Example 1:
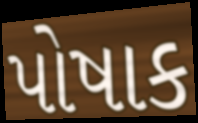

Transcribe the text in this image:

પોષાક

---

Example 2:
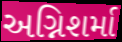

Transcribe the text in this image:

અગ્નિશર્મા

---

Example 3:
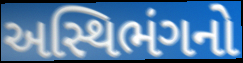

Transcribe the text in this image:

અસ્થિભંગનો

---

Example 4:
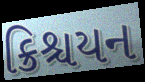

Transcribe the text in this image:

ક્રિશ્ચયન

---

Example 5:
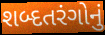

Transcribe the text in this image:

શબ્દતરંગોનું